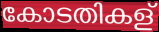
കോടതികള്